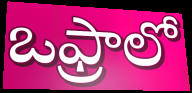
ఒఫ్రాలో